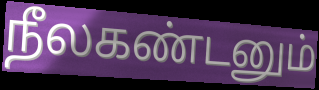
நீலகண்டனும்